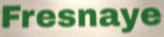
Fresnaye